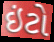
ઇંટો